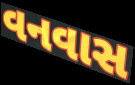
વનવાસ